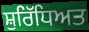
ਸ਼ੁਰਿੱਧਿਅਤ